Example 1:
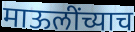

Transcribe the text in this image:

माऊलींच्याच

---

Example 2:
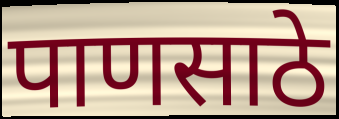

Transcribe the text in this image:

पाणसाठे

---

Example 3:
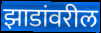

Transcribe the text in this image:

झाडांवरील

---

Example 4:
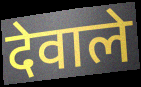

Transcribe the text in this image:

देवाले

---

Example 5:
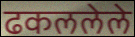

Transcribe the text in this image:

ढकललेले